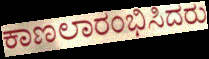
ಕಾಣಲಾರಂಭಿಸಿದರು